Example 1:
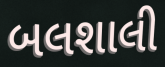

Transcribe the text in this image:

બલશાલી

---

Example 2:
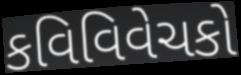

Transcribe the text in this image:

કવિવિવેચકો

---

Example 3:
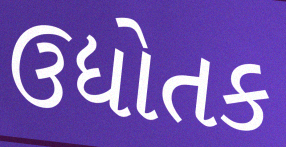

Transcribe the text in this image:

ઉદ્યોતક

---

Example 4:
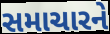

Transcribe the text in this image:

સમાચારને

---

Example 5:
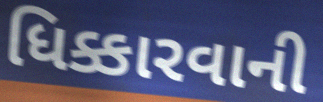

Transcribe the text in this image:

ધિક્કારવાની